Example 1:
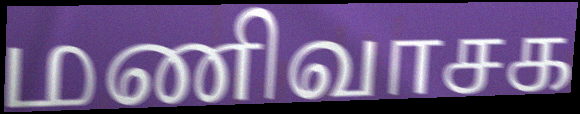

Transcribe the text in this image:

மணிவாசக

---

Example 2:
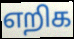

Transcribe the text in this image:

எறிக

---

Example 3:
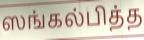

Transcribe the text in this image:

ஸங்கல்பித்த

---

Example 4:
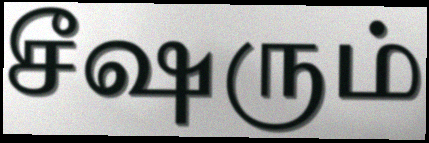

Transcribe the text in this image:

சீஷரும்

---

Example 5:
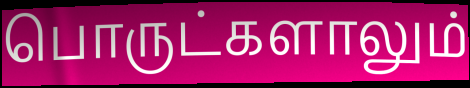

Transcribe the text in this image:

பொருட்களாலும்